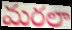
మరలా